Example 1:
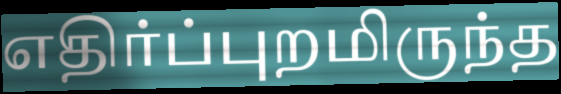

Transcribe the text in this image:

எதிர்ப்புறமிருந்த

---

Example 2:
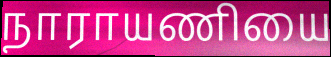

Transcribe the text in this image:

நாராயணியை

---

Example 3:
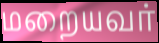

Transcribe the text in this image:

மறையவர்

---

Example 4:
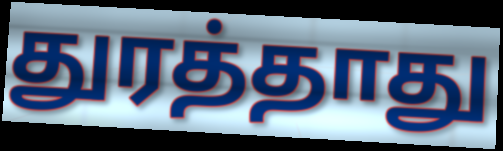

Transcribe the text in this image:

துரத்தாது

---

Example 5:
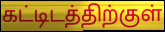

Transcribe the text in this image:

கட்டிடத்திற்குள்